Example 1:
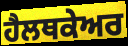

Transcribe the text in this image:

ਹੈਲਥਕੇਅਰ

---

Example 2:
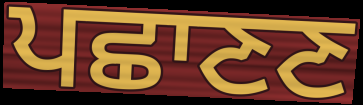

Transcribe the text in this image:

ਪਛਾਣਣ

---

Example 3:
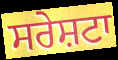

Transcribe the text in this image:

ਸਰੇਸ਼ਟਾ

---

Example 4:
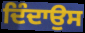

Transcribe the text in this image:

ਦਿੰਦਾਉਸ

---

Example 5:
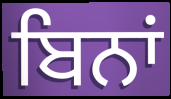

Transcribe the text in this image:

ਬਿਨਾਂ